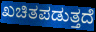
ಖಚಿತಪಡುತ್ತದೆ